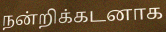
நன்றிக்கடனாக